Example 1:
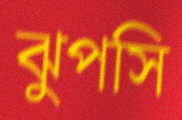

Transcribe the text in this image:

ঝুপসি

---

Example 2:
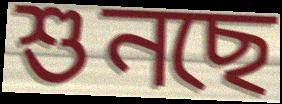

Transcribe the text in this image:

শুনছে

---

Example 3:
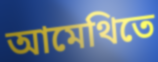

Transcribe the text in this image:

আমেথিতে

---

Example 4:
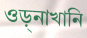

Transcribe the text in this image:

ওড়্নাখানি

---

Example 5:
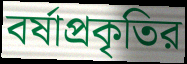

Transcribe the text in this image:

বর্ষাপ্রকৃতির